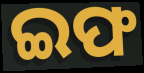
ଇଫ